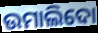
ଉମାଲିଦୋ